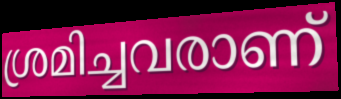
ശ്രമിച്ചവരാണ്